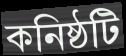
কনিষ্ঠটি